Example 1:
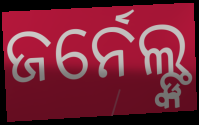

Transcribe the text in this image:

ଜର୍ନେଲ୍ଙ୍କ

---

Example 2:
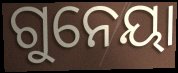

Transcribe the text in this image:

ଗୁନେୟା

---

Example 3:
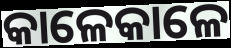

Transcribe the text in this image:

କାଳେକାଳେ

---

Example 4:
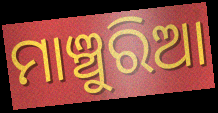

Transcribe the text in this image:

ମାଞ୍ଚୁରିଆ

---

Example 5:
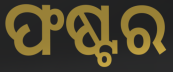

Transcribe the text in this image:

ଫଷ୍ଟର